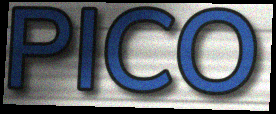
PICO